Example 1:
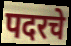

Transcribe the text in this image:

पदरचे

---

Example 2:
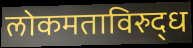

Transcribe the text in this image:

लोकमताविरुद्ध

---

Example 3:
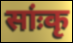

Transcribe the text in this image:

सांःकृ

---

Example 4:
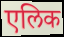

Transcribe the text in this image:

एलिक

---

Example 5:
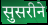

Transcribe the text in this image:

सुसरीने